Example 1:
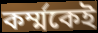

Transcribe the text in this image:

কর্ম্মকেই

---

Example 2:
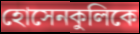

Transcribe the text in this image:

হোসেনকুলিকে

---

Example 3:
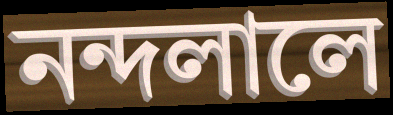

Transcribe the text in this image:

নন্দলালে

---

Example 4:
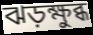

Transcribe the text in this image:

ঝড়ক্ষুব্ধ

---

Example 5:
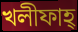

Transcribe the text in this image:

খলীফাহ্